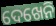
ଦେଖେନି